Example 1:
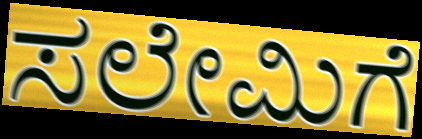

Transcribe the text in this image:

ಸಲೇಮಿಗೆ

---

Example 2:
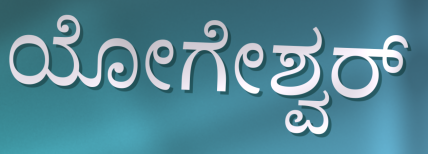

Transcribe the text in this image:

ಯೋಗೇಶ್ವರ್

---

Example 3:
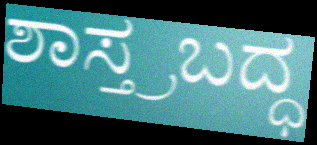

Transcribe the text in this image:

ಶಾಸ್ತ್ರಬದ್ಧ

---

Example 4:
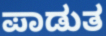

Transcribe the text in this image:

ಪಾಡುತ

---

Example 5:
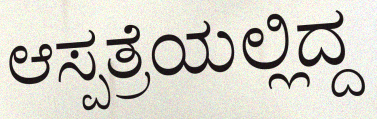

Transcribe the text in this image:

ಆಸ್ಪತ್ರೆಯಲ್ಲಿದ್ದ